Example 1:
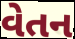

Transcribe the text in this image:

વેતન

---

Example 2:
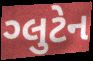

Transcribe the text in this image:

ગ્લુટેન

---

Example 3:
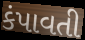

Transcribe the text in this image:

કંપાવતી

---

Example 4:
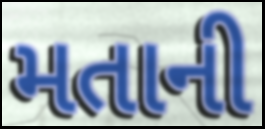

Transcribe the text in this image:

મતાની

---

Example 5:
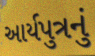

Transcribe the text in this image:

આર્યપુત્રનું